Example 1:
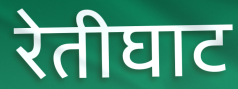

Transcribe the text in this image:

रेतीघाट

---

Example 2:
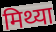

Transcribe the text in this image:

मिथ्या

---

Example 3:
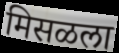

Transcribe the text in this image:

मिसळला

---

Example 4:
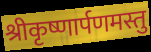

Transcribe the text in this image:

श्रीकृष्णार्पणमस्तु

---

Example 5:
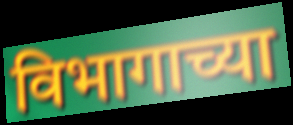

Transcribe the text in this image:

विभागाच्या